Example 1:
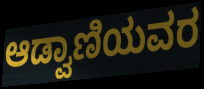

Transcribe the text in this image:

ಆಡ್ವಾಣಿಯವರ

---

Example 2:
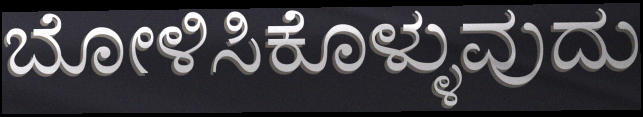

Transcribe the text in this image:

ಬೋಳಿಸಿಕೊಳ್ಳುವುದು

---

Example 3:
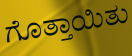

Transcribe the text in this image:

ಗೊತ್ತಾಯಿತು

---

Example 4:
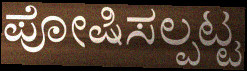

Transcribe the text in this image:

ಪೋಷಿಸಲ್ಪಟ್ಟ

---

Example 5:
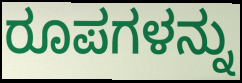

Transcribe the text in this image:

ರೂಪಗಳನ್ನು